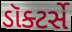
ડૉક્ટર્સે